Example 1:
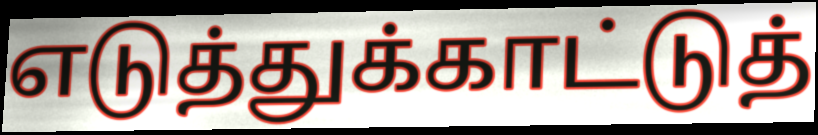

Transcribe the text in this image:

எடுத்துக்காட்டுத்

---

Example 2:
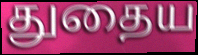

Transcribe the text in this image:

துதைய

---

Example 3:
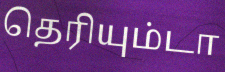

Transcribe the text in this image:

தெரியும்டா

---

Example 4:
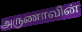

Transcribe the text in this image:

அருணாவின்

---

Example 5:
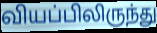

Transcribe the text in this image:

வியப்பிலிருந்து